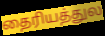
தைரியத்துல